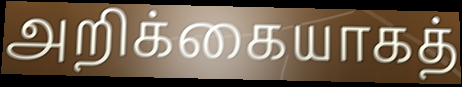
அறிக்கையாகத்